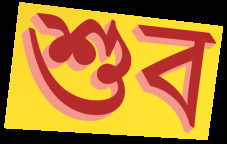
শুব